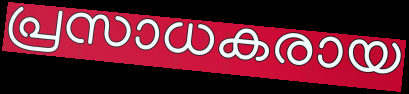
പ്രസാധകരായ